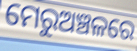
ମେରୁଅଞ୍ଚଳରେ